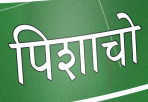
पिशाचो